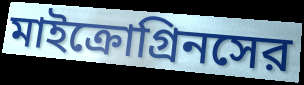
মাইক্রোগ্রিনসের